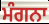
ਮੰਗਨਾ